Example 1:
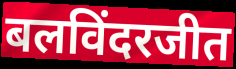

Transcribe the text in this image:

बलविंदरजीत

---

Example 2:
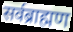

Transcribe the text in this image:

सर्वब्राह्मण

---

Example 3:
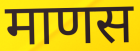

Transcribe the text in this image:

माणस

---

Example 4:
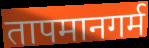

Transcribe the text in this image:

तापमानगर्म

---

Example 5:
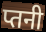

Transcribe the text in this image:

प्तनी